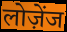
लोज़ेंज